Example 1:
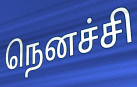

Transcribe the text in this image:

நெனச்சி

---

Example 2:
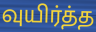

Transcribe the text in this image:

வுயிர்த்த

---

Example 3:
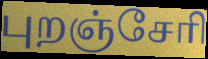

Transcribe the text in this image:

புறஞ்சேரி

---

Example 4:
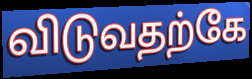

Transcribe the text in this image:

விடுவதற்கே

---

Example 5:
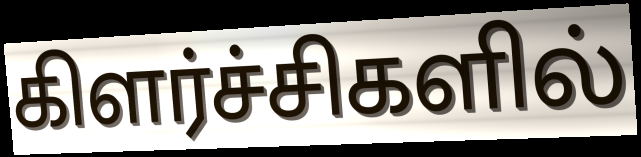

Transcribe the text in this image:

கிளர்ச்சிகளில்